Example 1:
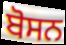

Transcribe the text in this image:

ਬੋਸਨ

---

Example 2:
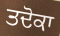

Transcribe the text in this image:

ਤਦੋਕਾ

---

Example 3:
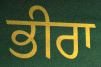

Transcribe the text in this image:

ਭੀਰਾ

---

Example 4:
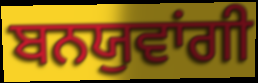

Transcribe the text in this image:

ਬਨਯੁਵਾਂਗੀ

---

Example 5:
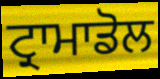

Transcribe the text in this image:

ਟ੍ਰਾਮਾਡੋਲ